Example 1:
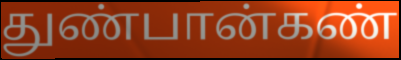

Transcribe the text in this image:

துண்பான்கண்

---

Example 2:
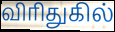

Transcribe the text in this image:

விரிதுகில்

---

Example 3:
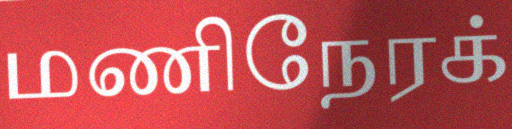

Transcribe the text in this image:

மணிநேரக்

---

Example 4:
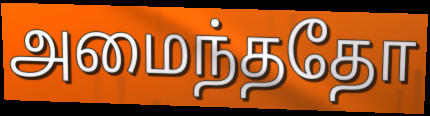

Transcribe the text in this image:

அமைந்ததோ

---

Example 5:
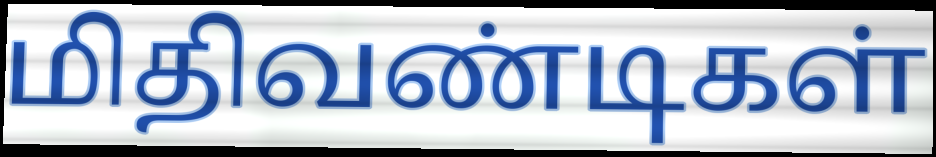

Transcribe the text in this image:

மிதிவண்டிகள்